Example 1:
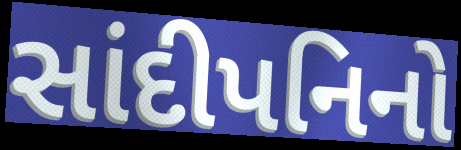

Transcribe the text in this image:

સાંદીપનિનો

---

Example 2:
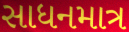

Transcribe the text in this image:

સાધનમાત્ર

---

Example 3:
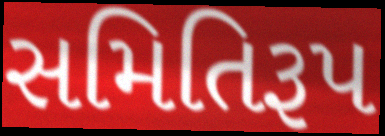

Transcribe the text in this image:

સમિતિરૂપ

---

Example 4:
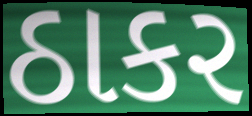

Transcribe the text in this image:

ઠાકર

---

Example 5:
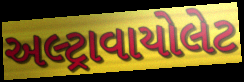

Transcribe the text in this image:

અલ્ટ્રાવાયોલેટ